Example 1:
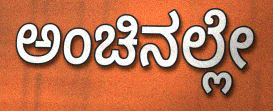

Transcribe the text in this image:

ಅಂಚಿನಲ್ಲೇ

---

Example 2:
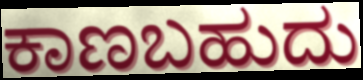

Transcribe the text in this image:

ಕಾಣಬಹುದು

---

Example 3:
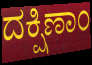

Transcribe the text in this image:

ದಕ್ಷಿಣಾಂ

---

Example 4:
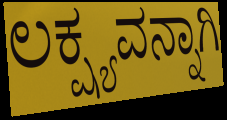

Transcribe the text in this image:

ಲಕ್ಷ್ಯವನ್ನಾಗಿ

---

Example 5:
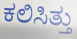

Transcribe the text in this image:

ಕಲಿಸಿತ್ತು